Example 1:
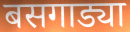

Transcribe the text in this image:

बसगाड्या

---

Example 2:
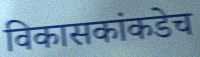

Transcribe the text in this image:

विकासकांकडेच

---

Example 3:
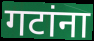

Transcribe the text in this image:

गटांना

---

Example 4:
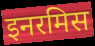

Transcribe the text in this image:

इनरमिस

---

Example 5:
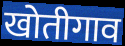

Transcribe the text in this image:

खोतीगाव